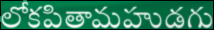
లోకపితామహుడగు